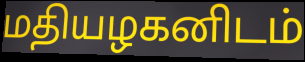
மதியழகனிடம்